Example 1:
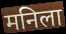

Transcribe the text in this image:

मनिला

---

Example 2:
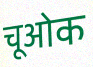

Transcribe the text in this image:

चूओक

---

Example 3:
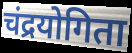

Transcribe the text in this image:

चंद्रयोगिता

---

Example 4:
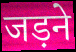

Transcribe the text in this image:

जड़ने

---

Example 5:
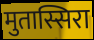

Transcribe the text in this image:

मुतास्सिरा